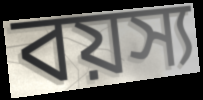
বয়স্য